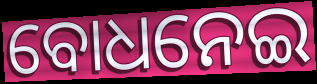
ବୋଧନେଇ